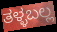
ತಳ್ಳಬಲ್ಲ